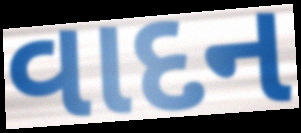
વાદન